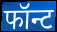
फॉन्ट